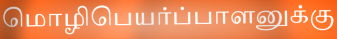
மொழிபெயர்ப்பாளனுக்கு